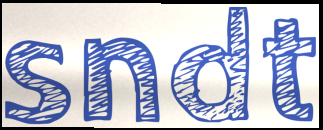
sndt